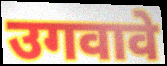
उगवावे